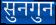
सुनगुन